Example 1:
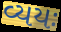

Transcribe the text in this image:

વ્યયઃ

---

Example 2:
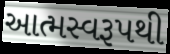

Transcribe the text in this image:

આત્મસ્વરૂપથી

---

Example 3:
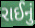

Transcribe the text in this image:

રાઈનું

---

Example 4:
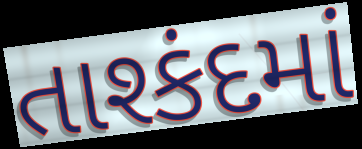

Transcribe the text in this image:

તાશ્કંદમાં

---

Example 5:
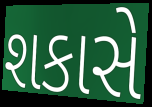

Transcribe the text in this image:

શકાસે